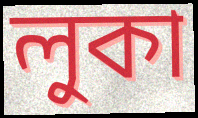
লুকা